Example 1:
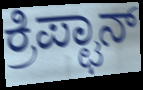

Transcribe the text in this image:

ಕ್ರಿಪ್ಟಾನ್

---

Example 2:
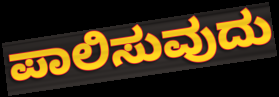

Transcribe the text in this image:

ಪಾಲಿಸುವುದು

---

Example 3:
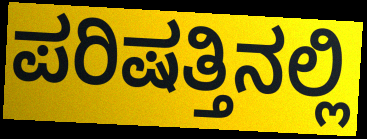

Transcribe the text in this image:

ಪರಿಷತ್ತಿನಲ್ಲಿ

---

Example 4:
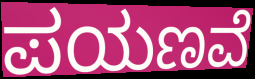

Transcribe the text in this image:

ಪಯಣವೆ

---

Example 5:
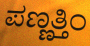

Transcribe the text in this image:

ಪಣ್ಣತ್ತಿಂ